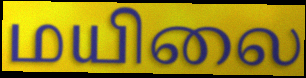
மயிலை